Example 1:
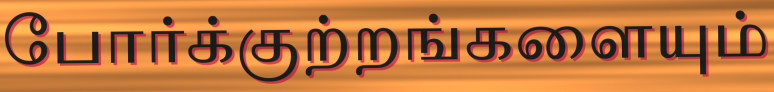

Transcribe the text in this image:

போர்க்குற்றங்களையும்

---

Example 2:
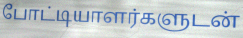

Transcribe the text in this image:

போட்டியாளர்களுடன்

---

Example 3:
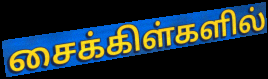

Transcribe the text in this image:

சைக்கிள்களில்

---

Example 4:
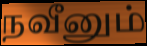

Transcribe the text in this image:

நவீனும்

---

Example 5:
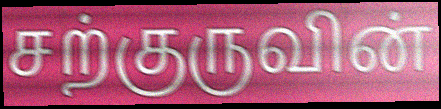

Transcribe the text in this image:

சற்குருவின்